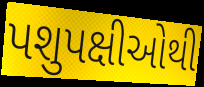
પશુપક્ષીઓથી